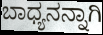
ಬಾಧ್ಯನನ್ನಾಗಿ